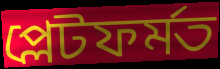
প্লেটফৰ্মত